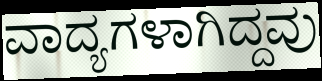
ವಾದ್ಯಗಳಾಗಿದ್ದವು